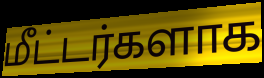
மீட்டர்களாக